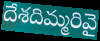
దేశదిమ్మరివై